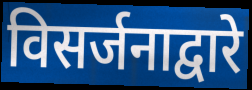
विसर्जनाद्वारे